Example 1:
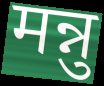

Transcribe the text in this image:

मन्नु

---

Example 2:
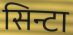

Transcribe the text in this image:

सिन्टा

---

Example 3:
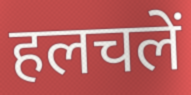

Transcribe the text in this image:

हलचलें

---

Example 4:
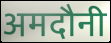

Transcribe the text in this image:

अमदौनी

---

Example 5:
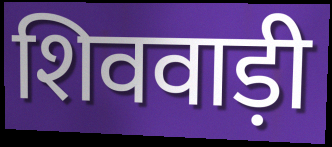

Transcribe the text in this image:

शिववाड़ी